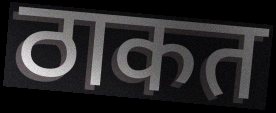
ठाकत